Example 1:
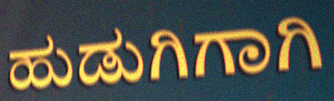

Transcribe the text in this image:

ಹುಡುಗಿಗಾಗಿ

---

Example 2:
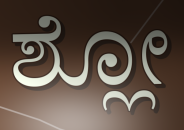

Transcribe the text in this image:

ಶ್ಲೋ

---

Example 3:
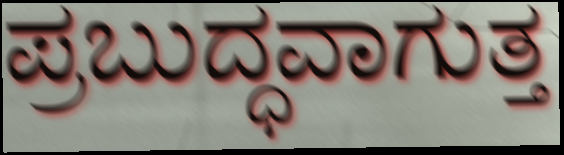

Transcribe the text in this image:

ಪ್ರಬುದ್ಧವಾಗುತ್ತ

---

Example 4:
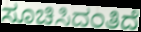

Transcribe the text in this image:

ಸೂಚಿಸಿದಂತಿದೆ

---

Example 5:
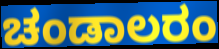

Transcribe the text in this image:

ಚಂಡಾಲರಂ